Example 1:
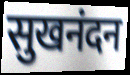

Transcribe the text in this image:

सुखनंदन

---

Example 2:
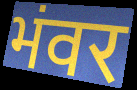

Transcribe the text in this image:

भंवर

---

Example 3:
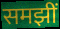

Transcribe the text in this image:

समझीं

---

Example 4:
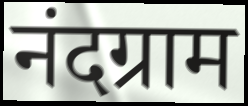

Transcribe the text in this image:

नंदग्राम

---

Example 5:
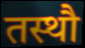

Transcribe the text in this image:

तस्थौ